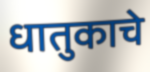
धातुकाचे